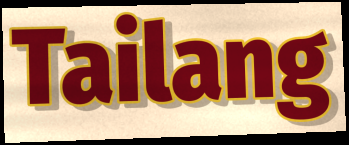
Tailang